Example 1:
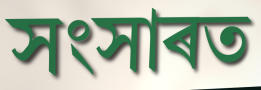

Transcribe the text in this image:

সংসাৰত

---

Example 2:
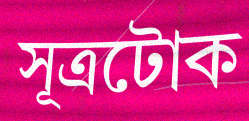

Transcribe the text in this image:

সূত্ৰটোক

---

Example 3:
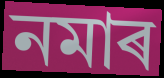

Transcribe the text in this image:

নমাৰ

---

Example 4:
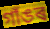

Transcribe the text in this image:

গাঁঙৰ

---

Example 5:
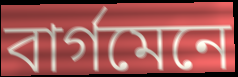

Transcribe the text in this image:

বাৰ্গমেনে